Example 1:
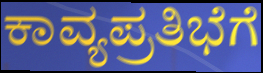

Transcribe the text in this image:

ಕಾವ್ಯಪ್ರತಿಭೆಗೆ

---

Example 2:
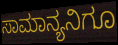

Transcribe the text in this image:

ಸಾಮಾನ್ಯನಿಗೂ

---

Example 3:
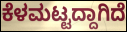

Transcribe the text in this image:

ಕೆಳಮಟ್ಟದ್ದಾಗಿದೆ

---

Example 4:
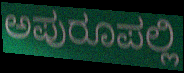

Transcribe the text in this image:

ಅಪುರೂಪಲ್ಲಿ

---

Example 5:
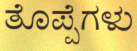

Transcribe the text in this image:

ತೊಪ್ಪೆಗಳು